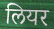
लियर